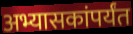
अभ्यासकांपर्यंत